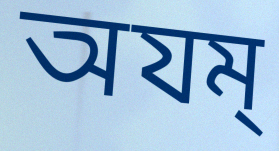
অযম্